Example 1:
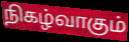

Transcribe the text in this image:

நிகழ்வாகும்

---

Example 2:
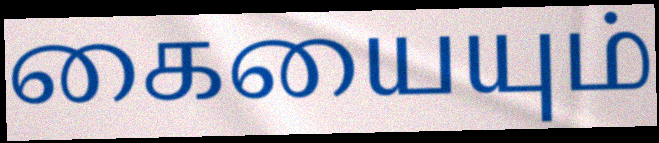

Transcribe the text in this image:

கையையும்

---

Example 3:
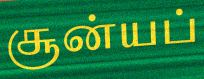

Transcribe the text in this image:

சூன்யப்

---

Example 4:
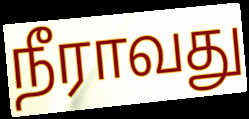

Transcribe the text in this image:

நீராவது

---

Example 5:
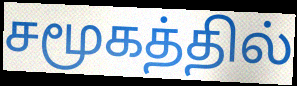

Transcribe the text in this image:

சமூகத்தில்